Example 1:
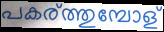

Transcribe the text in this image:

പകര്ത്തുമ്പോള്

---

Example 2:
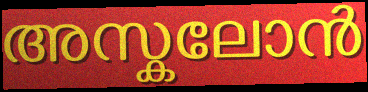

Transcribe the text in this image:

അസ്കലോൻ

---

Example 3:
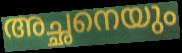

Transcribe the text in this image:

അച്ഛനെയും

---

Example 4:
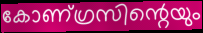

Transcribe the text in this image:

കോണ്ഗ്രസിന്റെയും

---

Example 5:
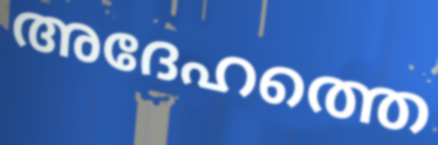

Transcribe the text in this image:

അദേഹത്തെ